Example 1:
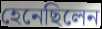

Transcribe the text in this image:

হেনেছিলেন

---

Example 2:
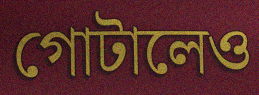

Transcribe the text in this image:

গোটালেও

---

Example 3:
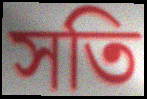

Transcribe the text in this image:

সতি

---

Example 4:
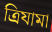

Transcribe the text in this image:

ত্রিযামা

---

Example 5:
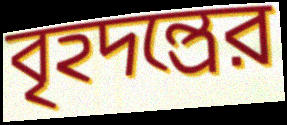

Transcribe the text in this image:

বৃহদন্ত্রের